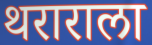
थराराला